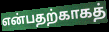
என்பதற்காகத்